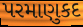
પરમાણુકદ